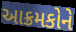
આક્રમકોને